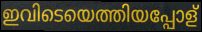
ഇവിടെയെത്തിയപ്പോള്